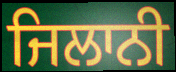
ਜਿਲਾਨੀ